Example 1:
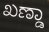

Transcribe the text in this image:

ಖಣ್ಡಾ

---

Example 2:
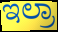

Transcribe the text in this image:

ಇಲ್ರಾ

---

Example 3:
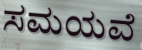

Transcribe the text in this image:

ಸಮಯವೆ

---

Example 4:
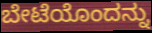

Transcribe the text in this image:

ಬೇಟೆಯೊಂದನ್ನು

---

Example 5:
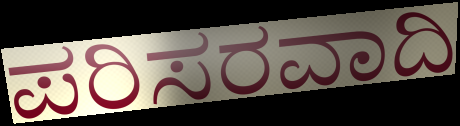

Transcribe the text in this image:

ಪರಿಸರವಾದಿ